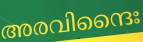
അരവിന്ദൈഃ